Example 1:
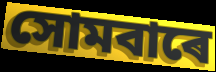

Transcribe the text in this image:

সোমবাৰে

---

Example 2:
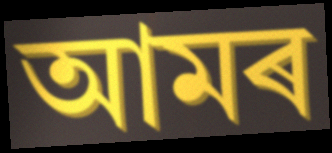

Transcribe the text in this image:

আমৰ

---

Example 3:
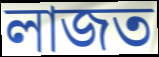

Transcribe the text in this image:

লাজত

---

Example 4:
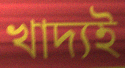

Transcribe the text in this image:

খাদ্যই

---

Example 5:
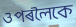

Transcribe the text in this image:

ওপৰলৈকে